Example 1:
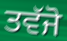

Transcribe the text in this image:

ਤਵੱਜੋ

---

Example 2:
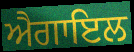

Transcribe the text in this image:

ਐਗਾਇਲ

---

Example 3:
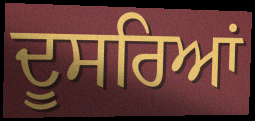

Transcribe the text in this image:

ਦੂਸਰਿਆਂ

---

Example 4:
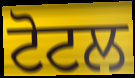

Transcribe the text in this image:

ਟੋਟਲ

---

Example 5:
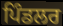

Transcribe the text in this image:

ਪਿੰਡਲਰ